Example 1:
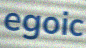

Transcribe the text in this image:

egoic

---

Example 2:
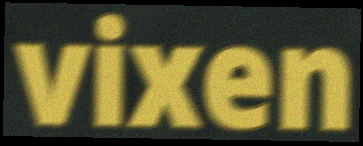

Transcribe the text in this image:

vixen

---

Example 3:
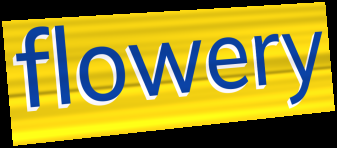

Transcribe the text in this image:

flowery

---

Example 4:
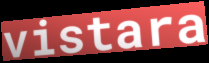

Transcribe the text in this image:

vistara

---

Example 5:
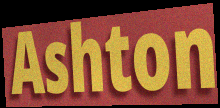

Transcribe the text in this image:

Ashton